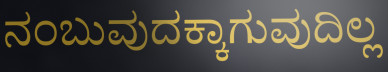
ನಂಬುವುದಕ್ಕಾಗುವುದಿಲ್ಲ